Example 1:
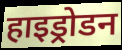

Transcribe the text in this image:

हाइड्रोडन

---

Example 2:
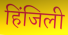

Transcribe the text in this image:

हिंजिली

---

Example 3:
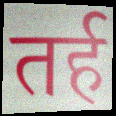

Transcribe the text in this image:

तर्ह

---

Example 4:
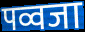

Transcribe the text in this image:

पव्वजा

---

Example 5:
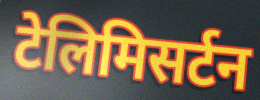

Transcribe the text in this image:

टेलिमिसर्टन